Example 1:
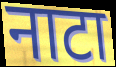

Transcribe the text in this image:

नाटा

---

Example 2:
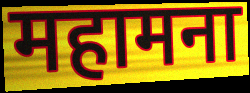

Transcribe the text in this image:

महामना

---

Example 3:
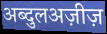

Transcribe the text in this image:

अब्दुलअज़ीज़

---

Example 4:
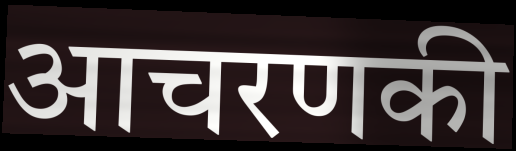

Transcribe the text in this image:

आचरणकी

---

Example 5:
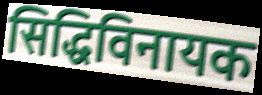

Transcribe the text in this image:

सिद्धिविनायक